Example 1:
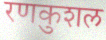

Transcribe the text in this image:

रणकुशल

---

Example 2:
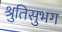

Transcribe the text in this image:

श्रुतिसुभग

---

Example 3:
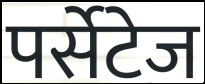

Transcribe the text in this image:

पर्सेटेज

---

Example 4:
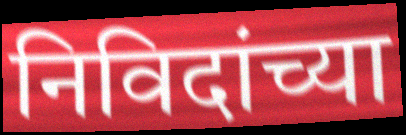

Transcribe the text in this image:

निविदांच्या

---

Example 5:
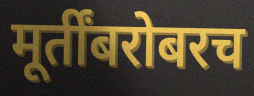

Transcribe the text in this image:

मूर्तींबरोबरच